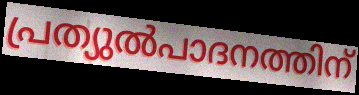
പ്രത്യുൽപാദനത്തിന്